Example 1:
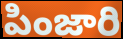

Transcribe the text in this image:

పింజారి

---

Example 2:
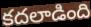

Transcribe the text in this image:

కదలాడింది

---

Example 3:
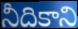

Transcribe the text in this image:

నీదికాని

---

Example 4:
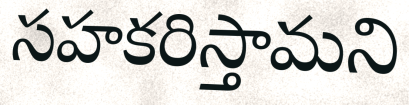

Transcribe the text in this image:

సహకరిస్తామని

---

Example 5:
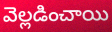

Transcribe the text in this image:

వెల్లడించాయి